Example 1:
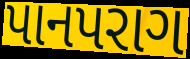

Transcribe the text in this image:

પાનપરાગ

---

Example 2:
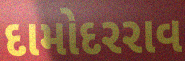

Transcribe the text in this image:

દામોદરરાવ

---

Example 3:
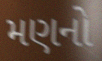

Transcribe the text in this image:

મણનો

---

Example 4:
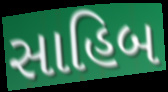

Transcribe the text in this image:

સાહિબ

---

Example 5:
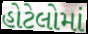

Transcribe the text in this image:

હોટેલોમાં